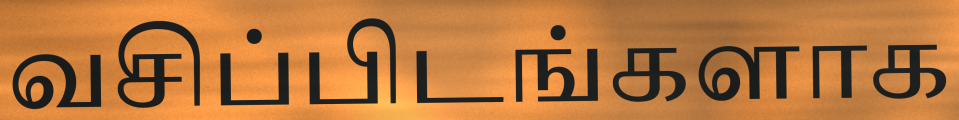
வசிப்பிடங்களாக